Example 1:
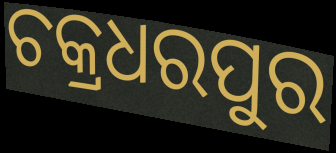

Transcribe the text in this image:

ଚକ୍ରଧରପୁର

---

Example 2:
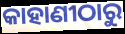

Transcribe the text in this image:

କାହାଣୀଠାରୁ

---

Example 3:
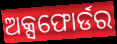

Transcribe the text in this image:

ଅକ୍ସଫୋର୍ଡର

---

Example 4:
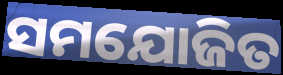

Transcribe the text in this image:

ସମଯୋଜିତ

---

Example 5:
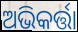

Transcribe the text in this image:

ଅଭିକର୍ତ୍ତା